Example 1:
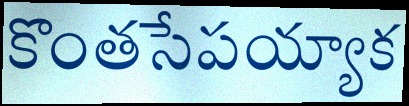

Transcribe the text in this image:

కొంతసేపయ్యాక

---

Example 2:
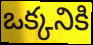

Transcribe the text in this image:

ఒక్కనికి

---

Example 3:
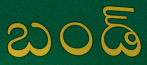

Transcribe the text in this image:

బండ్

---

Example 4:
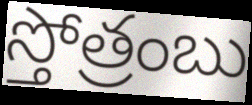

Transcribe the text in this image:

స్తోత్రంబు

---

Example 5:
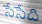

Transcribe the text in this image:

సేసేది